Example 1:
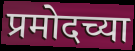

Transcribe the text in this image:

प्रमोदच्या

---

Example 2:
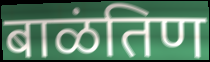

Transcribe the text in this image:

बाळंतिण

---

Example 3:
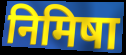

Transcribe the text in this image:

निमिषा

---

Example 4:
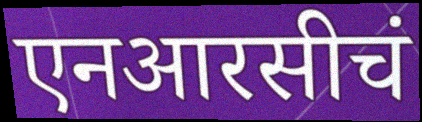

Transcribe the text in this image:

एनआरसीचं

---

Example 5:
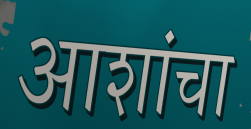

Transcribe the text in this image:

आशांचा